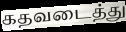
கதவடைத்து